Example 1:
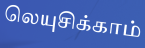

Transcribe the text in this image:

லெயுசிக்காம்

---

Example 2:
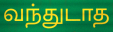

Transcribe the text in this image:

வந்துடாத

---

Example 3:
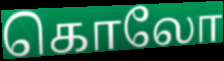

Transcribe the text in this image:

கொலோ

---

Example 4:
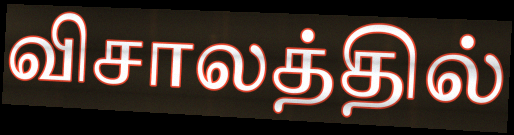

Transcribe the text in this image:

விசாலத்தில்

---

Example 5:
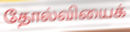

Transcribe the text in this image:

தோல்வியைக்